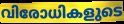
വിരോധികളുടെ